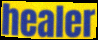
healer